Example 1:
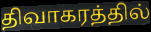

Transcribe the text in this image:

திவாகரத்தில்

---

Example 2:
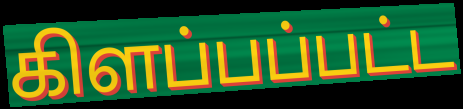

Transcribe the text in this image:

கிளப்பப்பட்ட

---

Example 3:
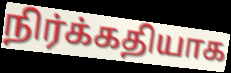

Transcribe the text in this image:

நிர்க்கதியாக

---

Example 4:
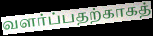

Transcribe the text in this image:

வளர்ப்பதற்காகத்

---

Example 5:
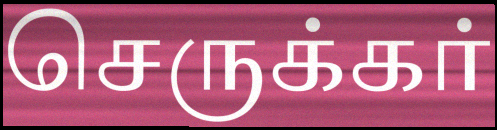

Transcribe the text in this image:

செருக்கர்